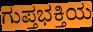
ಗುಪ್ತಭಕ್ತಿಯ